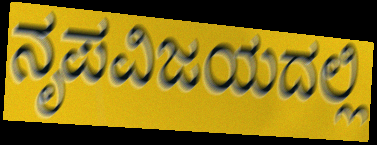
ನೃಪವಿಜಯದಲ್ಲಿ